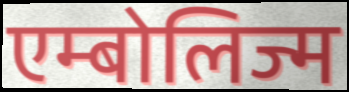
एम्बोलिज्म